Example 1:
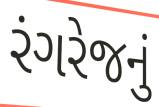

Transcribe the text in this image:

રંગરેજનું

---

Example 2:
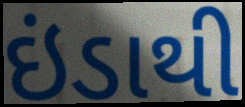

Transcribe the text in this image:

ઇંડાથી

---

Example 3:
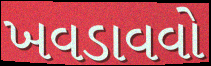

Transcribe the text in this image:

ખવડાવવો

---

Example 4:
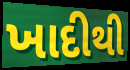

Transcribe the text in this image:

ખાદીથી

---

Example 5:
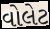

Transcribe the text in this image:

વોલેટ